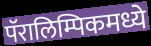
पॅरालिम्पिकमध्ये